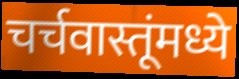
चर्चवास्तूंमध्ये